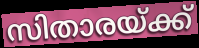
സിതാരയ്ക്ക്